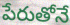
పేరుతోనే